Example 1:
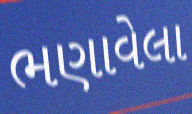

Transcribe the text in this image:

ભણાવેલા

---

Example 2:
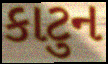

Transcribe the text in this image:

કાટુન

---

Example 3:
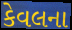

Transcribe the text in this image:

કેવલના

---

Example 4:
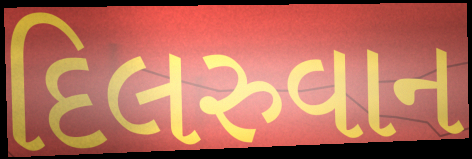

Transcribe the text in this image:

દિલરુવાન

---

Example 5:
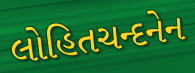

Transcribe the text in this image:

લોહિતચન્દનેન